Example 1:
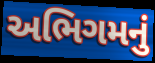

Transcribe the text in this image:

અભિગમનું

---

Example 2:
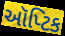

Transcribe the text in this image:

ઑપ્ટિક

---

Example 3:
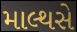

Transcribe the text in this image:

માલ્થસે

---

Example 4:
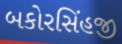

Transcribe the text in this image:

બકોરસિંહજી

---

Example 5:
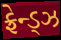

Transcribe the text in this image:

ફ્રેન્ડ્ઝ